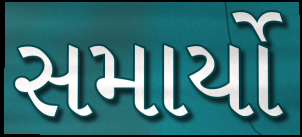
સમાર્યો